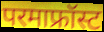
परमाफ्रॉस्ट